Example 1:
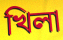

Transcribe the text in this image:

খিলা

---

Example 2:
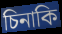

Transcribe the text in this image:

চিনাকি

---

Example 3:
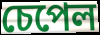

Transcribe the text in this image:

চেপেল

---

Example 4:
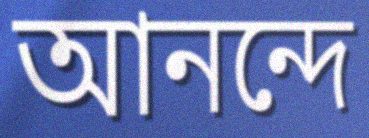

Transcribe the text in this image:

আনন্দে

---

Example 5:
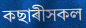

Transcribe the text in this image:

কছাৰীসকল